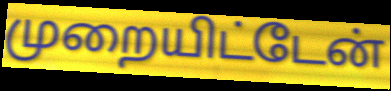
முறையிட்டேன்